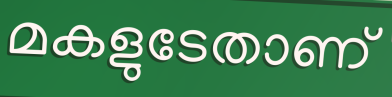
മകളുടേതാണ്